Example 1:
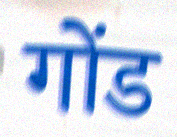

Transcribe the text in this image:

गोंड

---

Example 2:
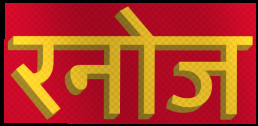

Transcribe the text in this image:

रनोज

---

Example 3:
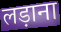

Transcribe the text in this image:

लड़ाना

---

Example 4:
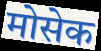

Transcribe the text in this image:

मोसेक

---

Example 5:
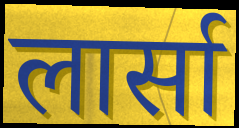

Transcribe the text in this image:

लार्सा